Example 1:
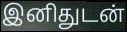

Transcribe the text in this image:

இனிதுடன்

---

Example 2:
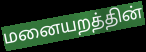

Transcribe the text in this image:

மனையறத்தின்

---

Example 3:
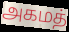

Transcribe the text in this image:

அகமத்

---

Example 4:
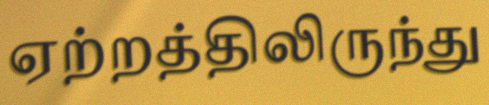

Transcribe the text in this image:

ஏற்றத்திலிருந்து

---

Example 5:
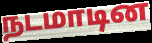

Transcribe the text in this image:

நடமாடின